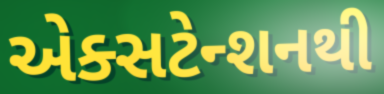
એક્સટેન્શનથી